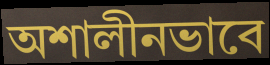
অশালীনভাবে